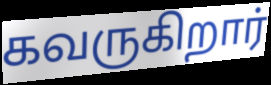
கவருகிறார்